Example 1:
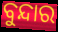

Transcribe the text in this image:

ବୁନ୍ଦାର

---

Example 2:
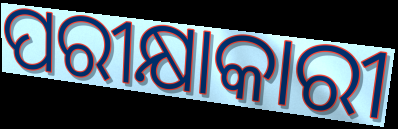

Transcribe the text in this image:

ପରୀକ୍ଷାକାରୀ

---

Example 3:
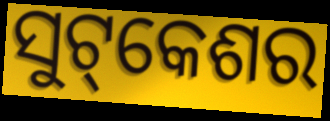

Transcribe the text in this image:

ସୁଟ୍‌କେଶର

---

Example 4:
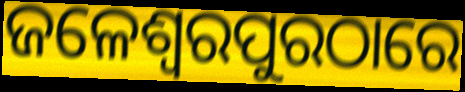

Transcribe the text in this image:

ଜଳେଶ୍ୱରପୁରଠାରେ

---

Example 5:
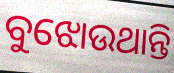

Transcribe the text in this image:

ବୁଝୋଉଥାନ୍ତି